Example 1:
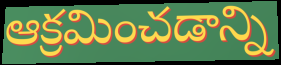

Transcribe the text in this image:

ఆక్రమించడాన్ని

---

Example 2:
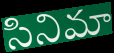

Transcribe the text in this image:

సినిమా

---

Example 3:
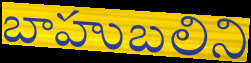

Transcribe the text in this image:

బాహుబలిని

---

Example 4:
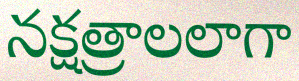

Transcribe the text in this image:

నక్షత్రాలలాగా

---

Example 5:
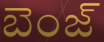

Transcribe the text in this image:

బెంజ్